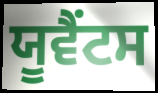
ਯੂਵੈਂਟਸ